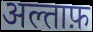
अल्ताफ़